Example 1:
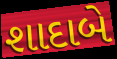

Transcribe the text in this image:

શાદાબે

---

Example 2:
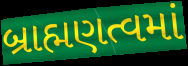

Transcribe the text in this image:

બ્રાહ્મણત્વમાં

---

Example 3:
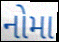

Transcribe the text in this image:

નોમા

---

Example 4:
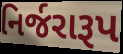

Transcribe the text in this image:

નિર્જરારૂપ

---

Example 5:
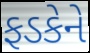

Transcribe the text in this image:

ફડકેને